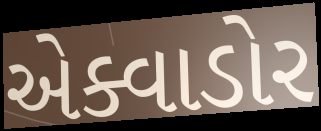
એક્વાડોર